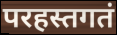
परहस्तगतं